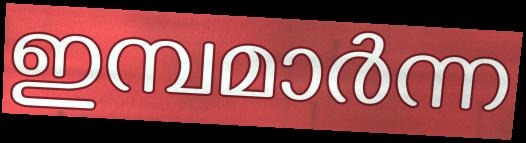
ഇമ്പമാർന്ന